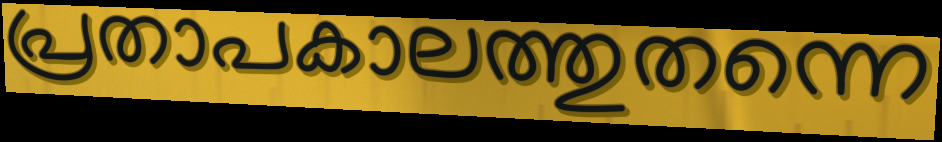
പ്രതാപകാലത്തുതന്നെ